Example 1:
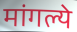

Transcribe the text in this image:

मांगल्ये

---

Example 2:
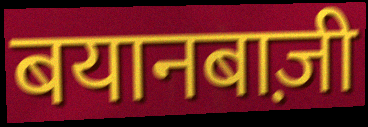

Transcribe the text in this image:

बयानबाज़ी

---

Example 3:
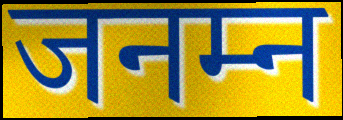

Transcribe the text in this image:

जनम्न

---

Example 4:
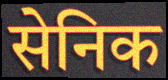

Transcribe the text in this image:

सेनिक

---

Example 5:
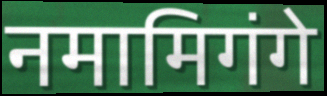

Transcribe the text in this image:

नमामिगंगे